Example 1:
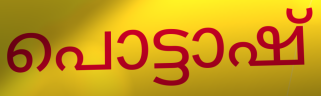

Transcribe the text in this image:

പൊട്ടാഷ്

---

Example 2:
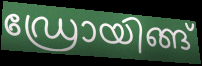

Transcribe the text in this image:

ഡ്രോയിങ്ങ്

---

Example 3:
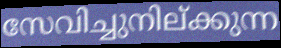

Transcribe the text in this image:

സേവിച്ചുനില്ക്കുന്ന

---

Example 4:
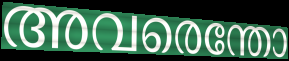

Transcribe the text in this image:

അവരെന്തോ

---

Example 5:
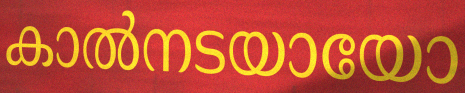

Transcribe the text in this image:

കാൽനടയായോ